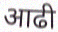
आढी